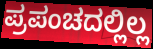
ಪ್ರಪಂಚದಲ್ಲಿಲ್ಲ